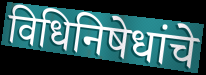
विधिनिषेधांचे